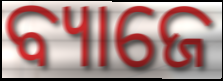
ବ୍ୟାଜେ